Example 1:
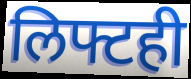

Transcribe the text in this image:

लिफ्टही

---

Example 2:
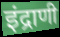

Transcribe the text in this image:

इंद्राणी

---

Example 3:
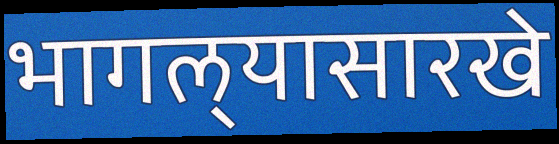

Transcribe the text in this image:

भागल्यासारखे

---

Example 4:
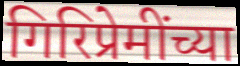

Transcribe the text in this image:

गिरिप्रेमींच्या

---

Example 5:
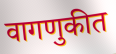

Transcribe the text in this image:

वागणुकीत